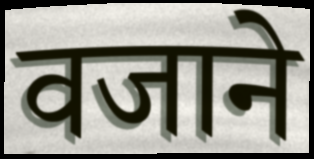
वजाने